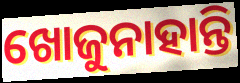
ଖୋଜୁନାହାନ୍ତି